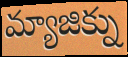
మ్యాజిక్ను